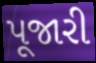
પૂજારી